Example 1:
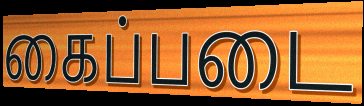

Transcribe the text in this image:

கைப்படை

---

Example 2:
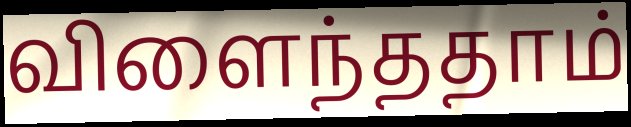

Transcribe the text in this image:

விளைந்ததாம்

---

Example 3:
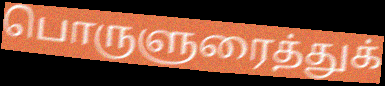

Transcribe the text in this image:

பொருளுரைத்துக்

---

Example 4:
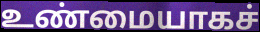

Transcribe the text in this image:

உண்மையாகச்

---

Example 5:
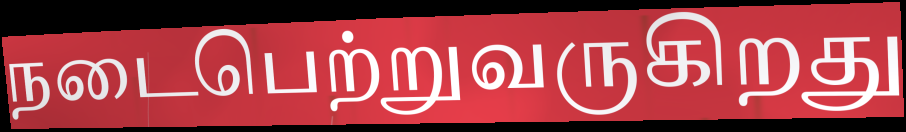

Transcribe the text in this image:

நடைபெற்றுவருகிறது